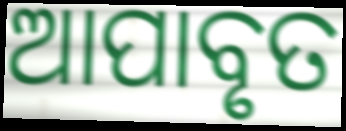
ଆପାବୃତ